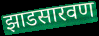
झाडसारवण